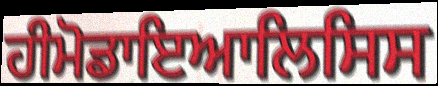
ਹੀਮੋਡਾਇਆਲਿਸਿਸ